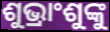
ଶୁଭ୍ରାଂଶୁଙ୍କୁ